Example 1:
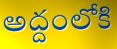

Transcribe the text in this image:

అద్దంలోకి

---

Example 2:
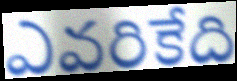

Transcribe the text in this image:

ఎవరికేది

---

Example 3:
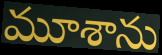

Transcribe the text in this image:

మూశాను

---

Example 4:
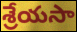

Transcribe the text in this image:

శ్రేయసా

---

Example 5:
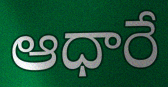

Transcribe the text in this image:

ఆధారే